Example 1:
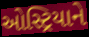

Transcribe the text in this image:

ઓસ્ટ્રિયાને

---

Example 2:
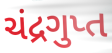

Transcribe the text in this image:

ચંદ્રગુપ્ત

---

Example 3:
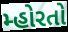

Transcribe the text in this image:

મ્હોરતો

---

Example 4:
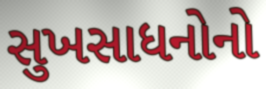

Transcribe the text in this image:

સુખસાધનોનો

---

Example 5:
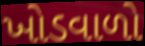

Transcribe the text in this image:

ખોડવાળો